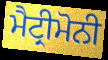
ਮੈਟ੍ਰੀਮੋਨੀ